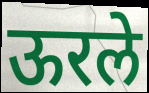
ऊरले